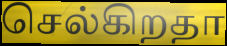
செல்கிறதா